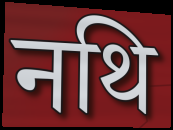
नथि